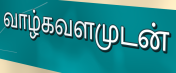
வாழ்கவளமுடன்